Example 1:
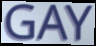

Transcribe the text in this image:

GAY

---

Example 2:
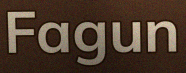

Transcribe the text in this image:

Fagun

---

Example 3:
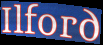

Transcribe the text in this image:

Ilford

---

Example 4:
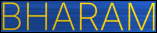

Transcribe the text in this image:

BHARAM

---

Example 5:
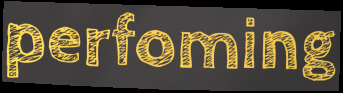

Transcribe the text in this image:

perfoming